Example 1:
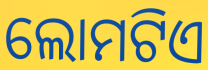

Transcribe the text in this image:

ଲୋମଟିଏ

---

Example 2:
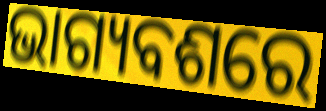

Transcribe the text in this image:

ଭାଗ୍ୟବଶରେ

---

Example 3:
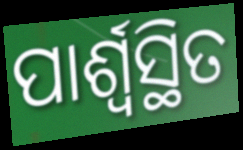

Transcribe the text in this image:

ପାର୍ଶ୍ୱସ୍ଥିତ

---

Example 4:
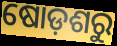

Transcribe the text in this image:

ଷୋଡ଼ଶରୁ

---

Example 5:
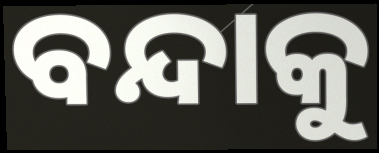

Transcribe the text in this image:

ବନ୍ଦାକୁ